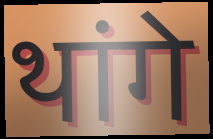
थांगे